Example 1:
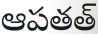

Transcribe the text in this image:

ఆపతత్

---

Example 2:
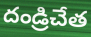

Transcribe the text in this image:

దండ్రిచేత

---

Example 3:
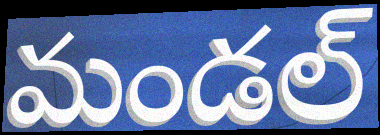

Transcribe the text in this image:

మండల్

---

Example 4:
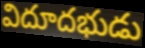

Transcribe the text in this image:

విదూదభుడు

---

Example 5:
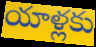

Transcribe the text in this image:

యాళ్లకు